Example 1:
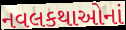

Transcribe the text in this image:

નવલકથાઓનાં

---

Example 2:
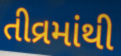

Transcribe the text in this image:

તીવ્રમાંથી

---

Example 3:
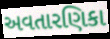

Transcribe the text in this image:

અવતારણિકા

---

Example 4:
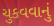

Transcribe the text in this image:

ચુકવવાનું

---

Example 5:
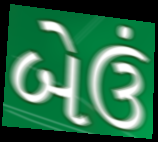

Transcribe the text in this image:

બેઉં